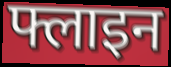
फ्लाइन